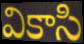
వికాసి